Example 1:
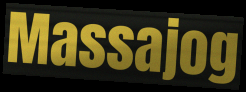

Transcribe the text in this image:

Massajog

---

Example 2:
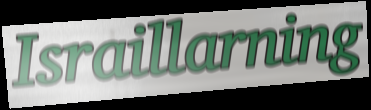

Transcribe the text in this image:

Israillarning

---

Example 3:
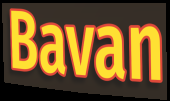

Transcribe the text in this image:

Bavan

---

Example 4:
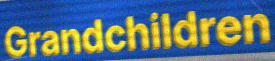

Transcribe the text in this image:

Grandchildren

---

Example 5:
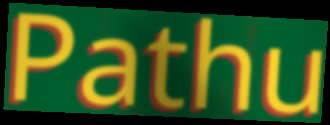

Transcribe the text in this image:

Pathu